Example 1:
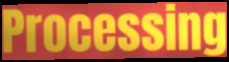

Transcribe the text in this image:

Processing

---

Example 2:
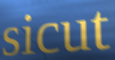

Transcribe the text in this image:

sicut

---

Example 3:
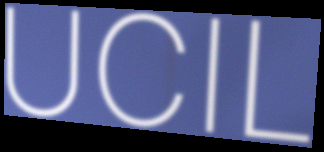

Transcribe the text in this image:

UCIL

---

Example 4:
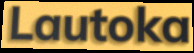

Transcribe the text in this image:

Lautoka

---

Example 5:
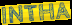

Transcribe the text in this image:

INTHA